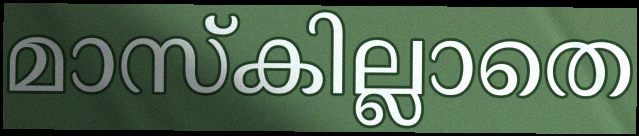
മാസ്കില്ലാതെ